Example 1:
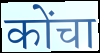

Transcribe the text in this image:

कोंचा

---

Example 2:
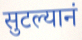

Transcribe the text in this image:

सुटल्यानं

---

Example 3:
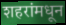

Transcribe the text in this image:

शहरांमधून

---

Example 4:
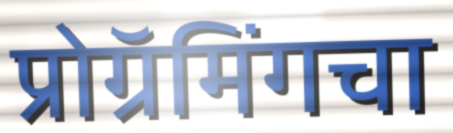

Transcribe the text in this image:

प्रोग्रॅमिंगचा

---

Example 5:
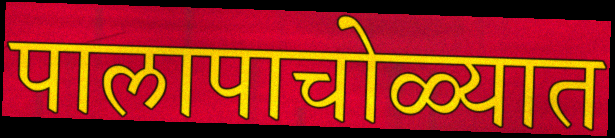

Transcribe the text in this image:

पालापाचोळ्यात